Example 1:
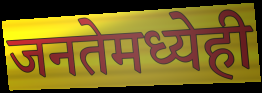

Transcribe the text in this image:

जनतेमध्येही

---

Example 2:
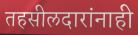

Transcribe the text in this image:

तहसीलदारांनाही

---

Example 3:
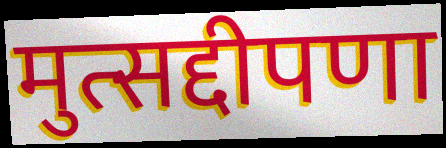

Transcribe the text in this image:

मुत्सद्दीपणा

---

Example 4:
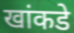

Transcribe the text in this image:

खांकडे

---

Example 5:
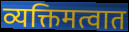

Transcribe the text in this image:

व्यक्तिमत्वात